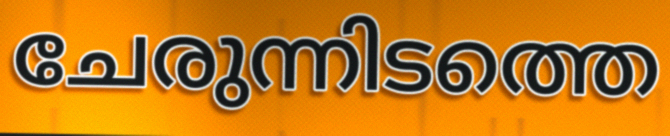
ചേരുന്നിടത്തെ